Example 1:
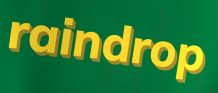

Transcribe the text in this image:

raindrop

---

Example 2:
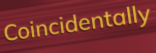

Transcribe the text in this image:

Coincidentally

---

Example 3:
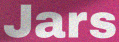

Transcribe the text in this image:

Jars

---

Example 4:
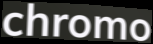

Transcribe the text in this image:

chromo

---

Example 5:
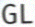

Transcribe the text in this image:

GL